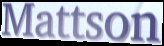
Mattson